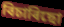
বিচাৰিছো